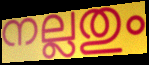
നല്ലതും